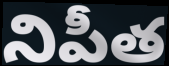
నిపీత